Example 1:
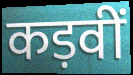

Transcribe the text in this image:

कड़वीं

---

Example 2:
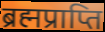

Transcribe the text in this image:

ब्रह्मप्राप्ति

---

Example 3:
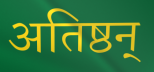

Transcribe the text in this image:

अतिष्ठन्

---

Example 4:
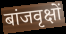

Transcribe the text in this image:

बांजवृक्षों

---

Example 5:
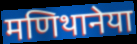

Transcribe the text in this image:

मणिथानेया